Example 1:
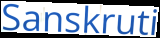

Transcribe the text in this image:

Sanskruti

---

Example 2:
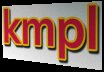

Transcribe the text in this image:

kmpl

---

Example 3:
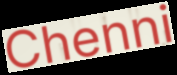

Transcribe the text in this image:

Chenni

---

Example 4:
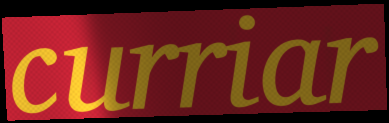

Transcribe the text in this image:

curriar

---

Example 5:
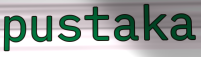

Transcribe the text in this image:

pustaka